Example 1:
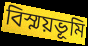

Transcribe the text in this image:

বিস্ময়ভূমি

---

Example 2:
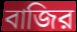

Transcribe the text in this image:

বাজির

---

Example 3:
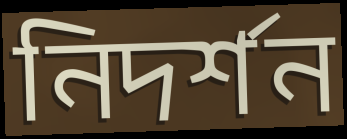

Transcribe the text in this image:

নিদর্শন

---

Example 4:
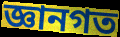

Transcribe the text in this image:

জ্ঞানগত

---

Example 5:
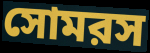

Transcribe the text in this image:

সোমরস